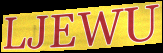
LJEWU